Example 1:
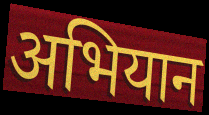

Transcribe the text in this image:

अभियान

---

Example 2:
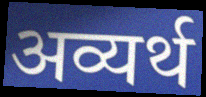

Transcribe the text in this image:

अव्यर्थ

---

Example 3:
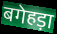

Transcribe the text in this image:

बगेहड़ा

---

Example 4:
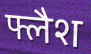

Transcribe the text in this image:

फ्लैश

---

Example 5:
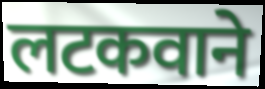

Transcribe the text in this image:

लटकवाने